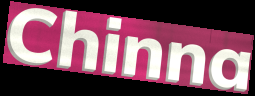
Chinna